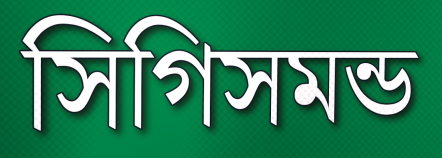
সিগিসমন্ড